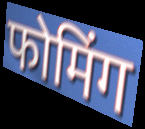
फोमिंग